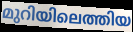
മുറിയിലെത്തിയ